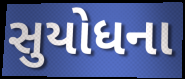
સુયોધના